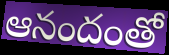
ఆనందంతో